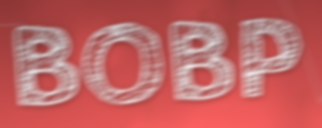
BOBP